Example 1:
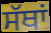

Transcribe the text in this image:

ਸੱਥਾਂ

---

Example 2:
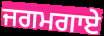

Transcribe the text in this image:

ਜਗਮਗਾਏ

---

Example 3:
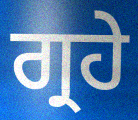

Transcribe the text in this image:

ਗ੍ਰਹੇ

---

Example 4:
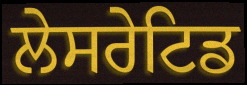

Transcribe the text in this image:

ਲੇਸਰੇਟਿਡ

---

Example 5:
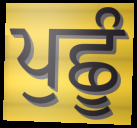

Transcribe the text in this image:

ਪੁਛੂੰ